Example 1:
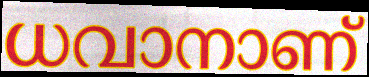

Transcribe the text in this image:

ധവാനാണ്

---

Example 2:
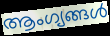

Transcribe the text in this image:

ആംഗ്യങ്ങൾ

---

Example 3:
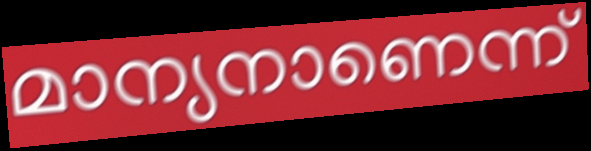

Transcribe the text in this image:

മാന്യനാണെന്ന്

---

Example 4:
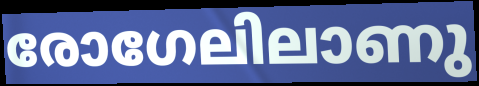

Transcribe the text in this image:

രോഗേലിലാണു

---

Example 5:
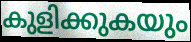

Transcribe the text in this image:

കുളിക്കുകയും